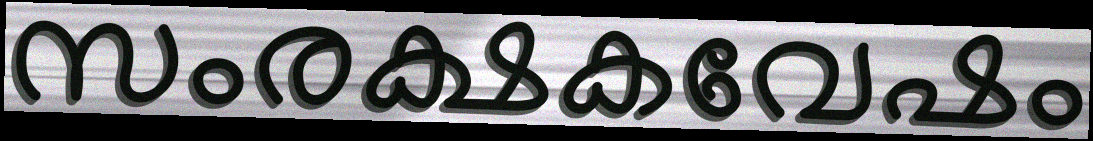
സംരക്ഷകവേഷം